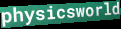
physicsworld